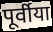
पूर्वीया